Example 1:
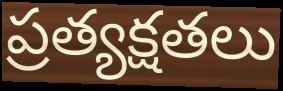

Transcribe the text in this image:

ప్రత్యక్షతలు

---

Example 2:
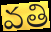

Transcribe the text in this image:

వతి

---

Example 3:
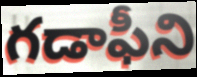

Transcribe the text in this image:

గడాఫీని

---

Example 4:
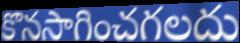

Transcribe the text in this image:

కొనసాగించగలదు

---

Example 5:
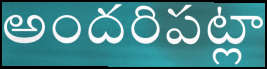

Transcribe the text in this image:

అందరిపట్లా